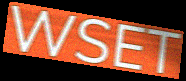
WSET